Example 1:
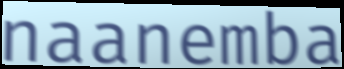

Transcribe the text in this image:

naanemba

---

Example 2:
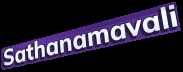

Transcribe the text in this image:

Sathanamavali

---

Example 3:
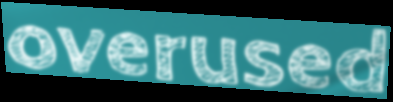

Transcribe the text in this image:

overused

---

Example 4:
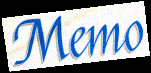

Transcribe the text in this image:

Memo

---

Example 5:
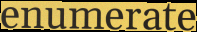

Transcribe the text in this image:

enumerate